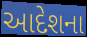
આદેશના